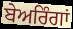
ਬੇਅਰਿੰਗਾਂ